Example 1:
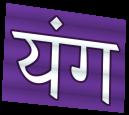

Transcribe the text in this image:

यंग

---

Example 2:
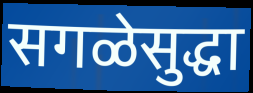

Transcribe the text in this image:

सगळेसुद्धा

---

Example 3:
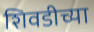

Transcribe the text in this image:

शिवडीच्या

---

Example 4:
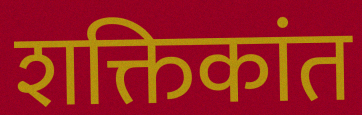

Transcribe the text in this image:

शक्तिकांत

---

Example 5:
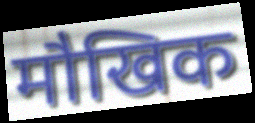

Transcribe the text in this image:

मौखिक